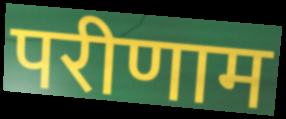
परीणाम